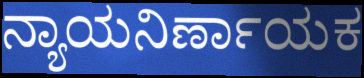
ನ್ಯಾಯನಿರ್ಣಾಯಕ